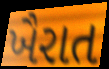
ખૈરાત